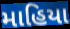
માહિયા